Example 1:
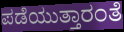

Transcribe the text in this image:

ಪಡೆಯುತ್ತಾರಂತೆ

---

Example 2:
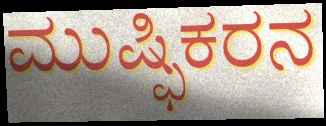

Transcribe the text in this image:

ಮುಷ್ಫಿಕರನ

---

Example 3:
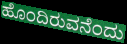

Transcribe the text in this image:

ಹೊಂದಿರುವನೆಂದು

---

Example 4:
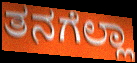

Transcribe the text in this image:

ತನಗೆಲ್ಲಾ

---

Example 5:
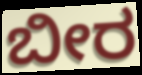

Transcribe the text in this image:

ಬೀರ